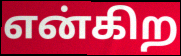
என்கிற